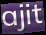
ajit